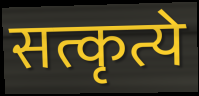
सत्कृत्ये